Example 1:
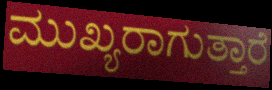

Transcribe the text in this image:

ಮುಖ್ಯರಾಗುತ್ತಾರೆ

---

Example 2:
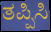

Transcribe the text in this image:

ತಪ್ಪಿಸಿ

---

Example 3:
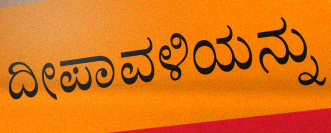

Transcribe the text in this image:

ದೀಪಾವಳಿಯನ್ನು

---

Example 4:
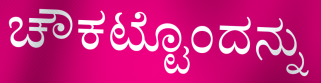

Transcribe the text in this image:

ಚೌಕಟ್ಟೊಂದನ್ನು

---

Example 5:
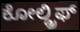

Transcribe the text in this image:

ಕೋಲ್ಡ್ರಿಫ್